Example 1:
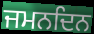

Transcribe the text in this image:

ਜਮਨਦਿਨ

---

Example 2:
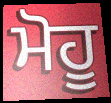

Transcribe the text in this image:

ਮੋਹੂ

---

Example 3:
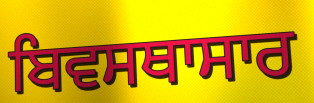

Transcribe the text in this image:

ਬਿਵਸਥਾਸਾਰ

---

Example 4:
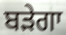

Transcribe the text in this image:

ਬੜੇਗਾ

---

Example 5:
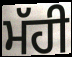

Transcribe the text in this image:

ਮੱਹੀ